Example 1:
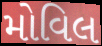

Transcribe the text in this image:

મોવિલ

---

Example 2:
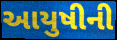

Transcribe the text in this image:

આયુષીની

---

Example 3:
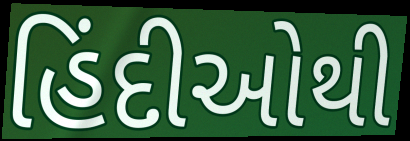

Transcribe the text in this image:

હિંદીઓથી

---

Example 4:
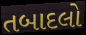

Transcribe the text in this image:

તબાદલો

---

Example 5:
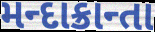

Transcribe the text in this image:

મન્દાક્રાન્તા